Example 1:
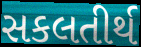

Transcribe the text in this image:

સકલતીર્થ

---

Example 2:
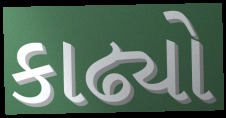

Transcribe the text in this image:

કાઢ્યો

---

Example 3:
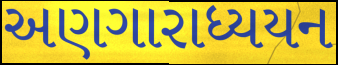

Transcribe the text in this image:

અણગારાધ્યયન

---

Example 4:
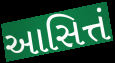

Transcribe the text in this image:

આસિત્તં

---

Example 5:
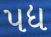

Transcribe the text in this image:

પદ્ય